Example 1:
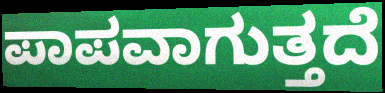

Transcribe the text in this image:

ಪಾಪವಾಗುತ್ತದೆ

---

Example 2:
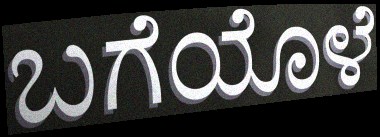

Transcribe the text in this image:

ಬಗೆಯೊಳೆ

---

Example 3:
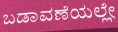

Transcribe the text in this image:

ಬಡಾವಣೆಯಲ್ಲೇ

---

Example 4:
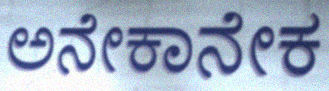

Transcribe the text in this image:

ಅನೇಕಾನೇಕ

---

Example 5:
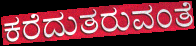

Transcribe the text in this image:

ಕರೆದುತರುವಂತೆ